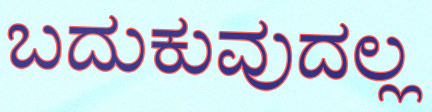
ಬದುಕುವುದಲ್ಲ